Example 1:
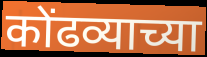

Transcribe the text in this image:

कोंढव्याच्या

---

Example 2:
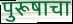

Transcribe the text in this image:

पुरूषाचा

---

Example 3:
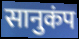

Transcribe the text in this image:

सानुकंप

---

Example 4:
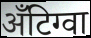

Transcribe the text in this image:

अँटिग्वा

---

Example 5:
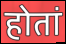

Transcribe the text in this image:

होतां